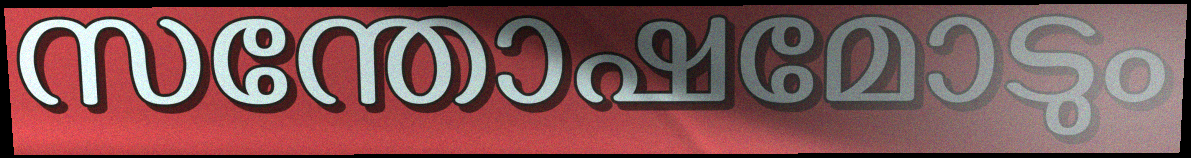
സന്തോഷമോടും